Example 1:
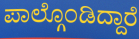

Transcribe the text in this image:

ಪಾಲ್ಗೊಂಡಿದ್ದಾರೆ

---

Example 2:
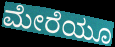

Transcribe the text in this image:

ಮೇರೆಯೂ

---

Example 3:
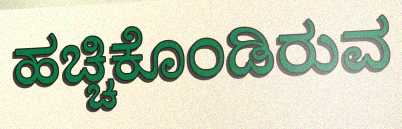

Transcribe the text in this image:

ಹಚ್ಚಿಕೊಂಡಿರುವ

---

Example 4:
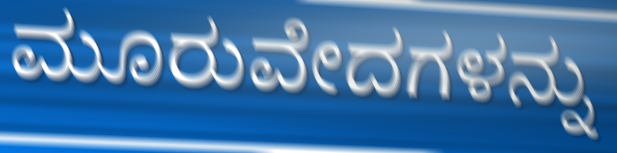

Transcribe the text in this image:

ಮೂರುವೇದಗಳನ್ನು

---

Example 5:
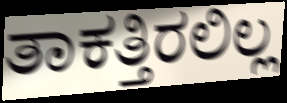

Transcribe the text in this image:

ತಾಕತ್ತಿರಲಿಲ್ಲ